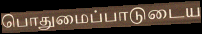
பொதுமைப்பாடுடைய